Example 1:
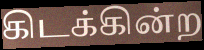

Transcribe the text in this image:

கிடக்கின்ற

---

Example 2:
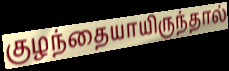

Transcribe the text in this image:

குழந்தையாயிருந்தால்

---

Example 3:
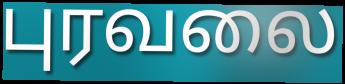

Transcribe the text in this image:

புரவலை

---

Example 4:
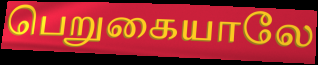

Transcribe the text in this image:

பெறுகையாலே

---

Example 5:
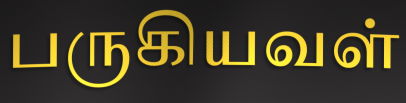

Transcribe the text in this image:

பருகியவள்